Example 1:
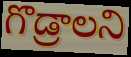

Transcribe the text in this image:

గొడ్రాలని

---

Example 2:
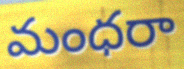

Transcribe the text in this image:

మంధరా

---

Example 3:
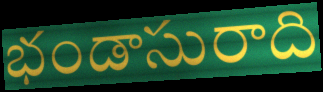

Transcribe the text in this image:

భండాసురాది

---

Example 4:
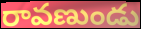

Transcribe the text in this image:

రావణుండు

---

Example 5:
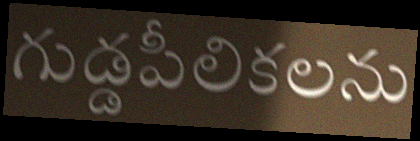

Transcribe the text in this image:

గుడ్డపీలికలను